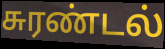
சுரண்டல்